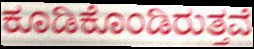
ಕೂಡಿಕೊಂಡಿರುತ್ತವೆ